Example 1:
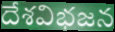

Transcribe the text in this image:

దేశవిభజన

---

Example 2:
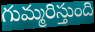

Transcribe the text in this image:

గుమ్మరిస్తుంది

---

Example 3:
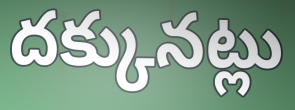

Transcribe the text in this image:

దక్కునట్లు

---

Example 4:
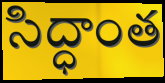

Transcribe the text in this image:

సిద్ధాంత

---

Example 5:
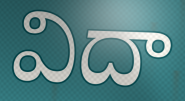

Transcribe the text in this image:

విదా